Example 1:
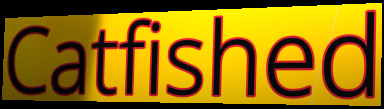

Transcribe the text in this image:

Catfished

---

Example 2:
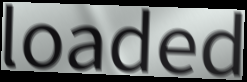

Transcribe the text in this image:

loaded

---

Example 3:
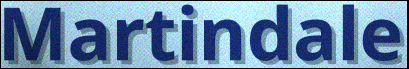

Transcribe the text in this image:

Martindale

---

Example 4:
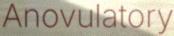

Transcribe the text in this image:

Anovulatory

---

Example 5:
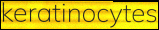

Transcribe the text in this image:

keratinocytes